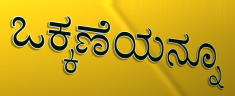
ಒಕ್ಕಣೆಯನ್ನೂ